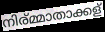
നിര്മ്മാതാക്കള്